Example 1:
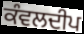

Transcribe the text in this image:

ਕੰਵਲਦੀਪ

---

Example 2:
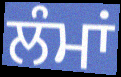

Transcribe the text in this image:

ਲੰਮਾਂ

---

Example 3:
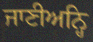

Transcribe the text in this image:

ਜਾਣੀਅਨ੍ਹਿ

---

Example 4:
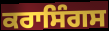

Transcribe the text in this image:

ਕਰਾਸਿੰਗਸ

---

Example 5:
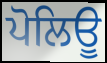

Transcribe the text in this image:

ਪੋਲਿਊ